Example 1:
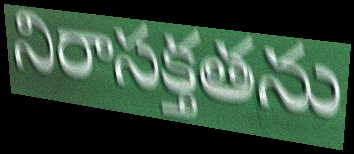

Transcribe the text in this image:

నిరాసక్తతను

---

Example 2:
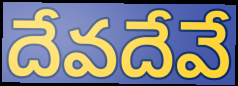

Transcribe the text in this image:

దేవదేవే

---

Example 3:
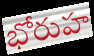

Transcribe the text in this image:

భోరుహ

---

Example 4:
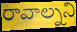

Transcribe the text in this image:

రావాల్నని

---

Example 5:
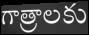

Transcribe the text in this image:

గాత్రాలకు